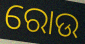
ରୋଉ